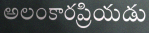
అలంకారప్రియడు